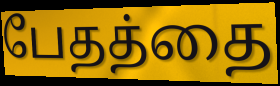
பேதத்தை